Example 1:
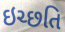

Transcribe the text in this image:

ઇચ્છતિ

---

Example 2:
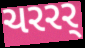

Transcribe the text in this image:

ચરરર્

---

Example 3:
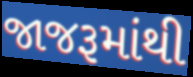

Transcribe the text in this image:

જાજરૂમાંથી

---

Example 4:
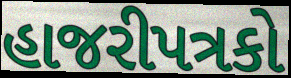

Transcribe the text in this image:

હાજરીપત્રકો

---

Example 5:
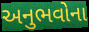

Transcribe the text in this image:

અનુભવોના